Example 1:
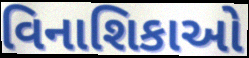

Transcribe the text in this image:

વિનાશિકાઓ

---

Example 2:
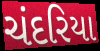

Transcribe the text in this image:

ચંદરિયા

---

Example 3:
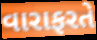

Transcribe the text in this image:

વારાફરતે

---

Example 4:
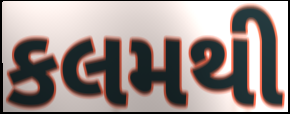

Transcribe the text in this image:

કલમથી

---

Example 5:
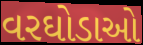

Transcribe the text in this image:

વરઘોડાઓ